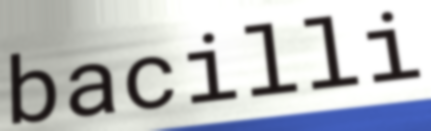
bacilli